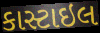
કાસ્ટાઇલ